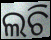
ଲଚି